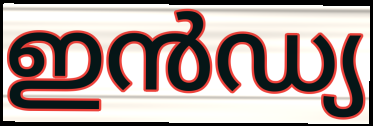
ഇൻഡ്യ